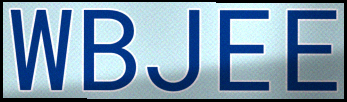
WBJEE